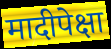
मादीपेक्षा